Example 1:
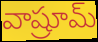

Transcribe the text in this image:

వాష్రూమ్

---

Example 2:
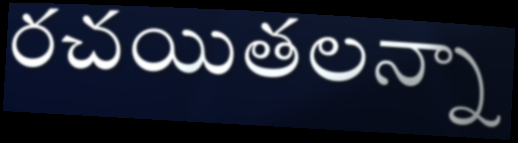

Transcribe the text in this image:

రచయితలన్నా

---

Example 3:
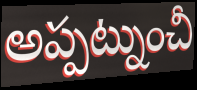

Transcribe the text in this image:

అప్పట్నుంచీ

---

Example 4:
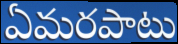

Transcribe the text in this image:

ఏమరపాటు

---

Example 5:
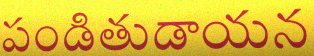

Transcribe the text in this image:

పండితుడాయన